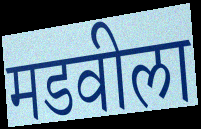
मडवीला